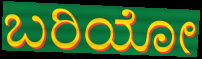
ಬರಿಯೋ